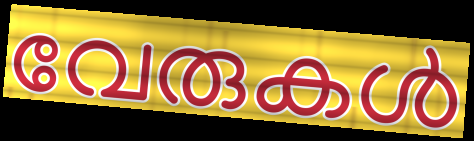
വേരുകൾ